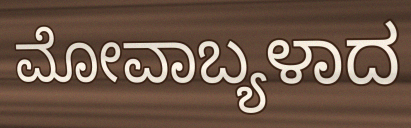
ಮೋವಾಬ್ಯಳಾದ